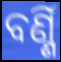
ବର୍ଣ୍ଣି